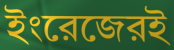
ইংরেজেরই